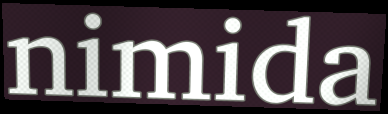
nimida